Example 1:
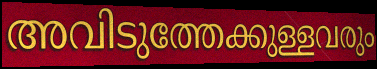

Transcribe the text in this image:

അവിടുത്തേക്കുള്ളവരും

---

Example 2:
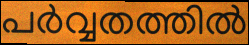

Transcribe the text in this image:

പർവ്വതത്തിൽ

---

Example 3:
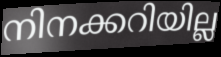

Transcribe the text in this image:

നിനക്കറിയില്ല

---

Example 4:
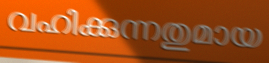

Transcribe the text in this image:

വഹിക്കുന്നതുമായ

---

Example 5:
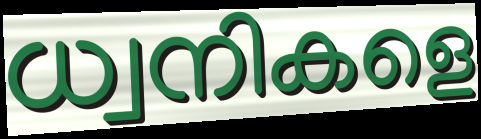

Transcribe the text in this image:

ധ്വനികളെ